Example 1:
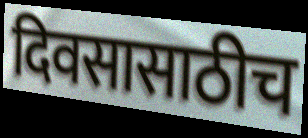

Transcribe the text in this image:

दिवसासाठीच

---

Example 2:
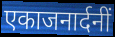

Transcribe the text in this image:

एकाजनार्दनीं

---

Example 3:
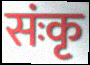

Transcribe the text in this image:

संःकृ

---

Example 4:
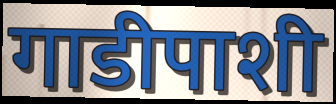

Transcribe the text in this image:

गाडीपाशी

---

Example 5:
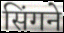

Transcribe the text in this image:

सिंगने